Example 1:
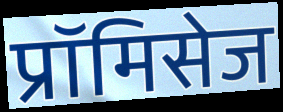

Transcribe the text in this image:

प्रॉमिसेज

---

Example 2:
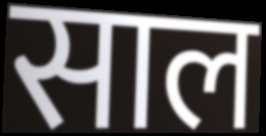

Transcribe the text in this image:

साल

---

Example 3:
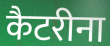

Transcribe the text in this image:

कैटरीना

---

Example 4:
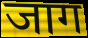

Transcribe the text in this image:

जाग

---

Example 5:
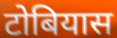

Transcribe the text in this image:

टोबियास